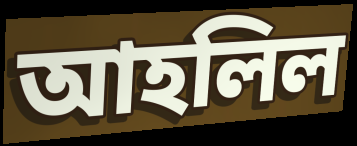
আহলিল